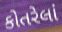
કોતરેલાં